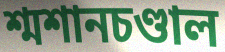
শ্মশানচণ্ডাল